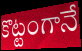
కొట్టంగానే